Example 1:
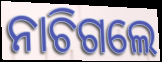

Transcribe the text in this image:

ନାଚିଗଲେ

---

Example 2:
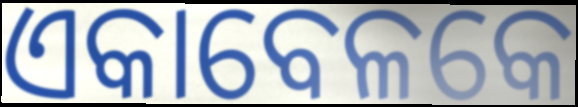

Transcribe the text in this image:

ଏକାବେଳକେ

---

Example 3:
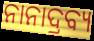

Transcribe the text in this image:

ନାନାଦ୍ରବ୍ୟ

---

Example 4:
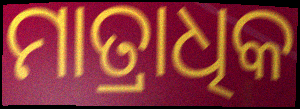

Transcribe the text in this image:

ମାତ୍ରାଧିକ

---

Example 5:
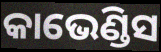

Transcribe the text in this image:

କାଭେଣ୍ଡିସ